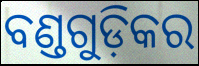
ବଣ୍ଡଗୁଡ଼ିକର